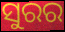
ସୁରର